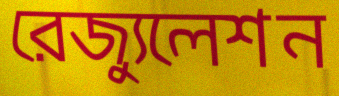
রেজ্যুলেশন